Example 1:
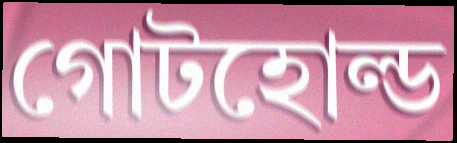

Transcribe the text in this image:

গোটহোল্ড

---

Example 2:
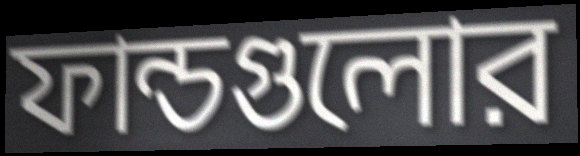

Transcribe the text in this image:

ফান্ডগুলোর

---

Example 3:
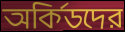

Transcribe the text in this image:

অর্কিডদের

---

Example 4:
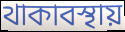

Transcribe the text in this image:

থাকাবস্থায়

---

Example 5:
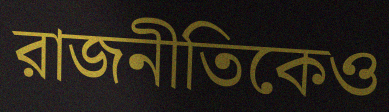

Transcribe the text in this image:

রাজনীতিকেও